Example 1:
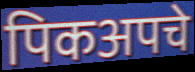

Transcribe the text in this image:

पिकअपचे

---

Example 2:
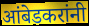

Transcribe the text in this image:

आंबेडकरांनी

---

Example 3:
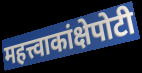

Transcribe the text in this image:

महत्त्वाकांक्षेपोटी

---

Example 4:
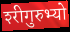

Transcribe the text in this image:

श्रीगुरुभ्यो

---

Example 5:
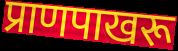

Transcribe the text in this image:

प्राणपाखरू